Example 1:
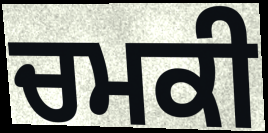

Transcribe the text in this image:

ਚਮਕੀ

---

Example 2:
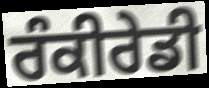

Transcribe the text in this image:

ਰੰਕੀਰੇਡੀ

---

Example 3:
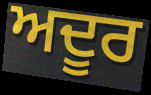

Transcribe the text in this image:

ਅਦੂਰ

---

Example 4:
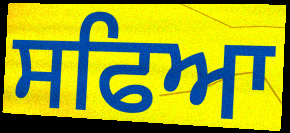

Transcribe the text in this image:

ਸਫਿਆ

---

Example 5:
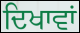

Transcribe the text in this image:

ਦਿਖਾਵਾਂ